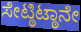
ಸೇಟ್ಠಿಟ್ಠಾನೇ